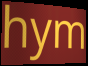
hym